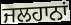
ਜਲਹਾਨਾਂ